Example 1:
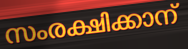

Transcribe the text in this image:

സംരക്ഷിക്കാന്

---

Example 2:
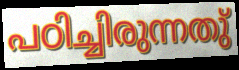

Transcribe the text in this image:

പഠിച്ചിരുന്നതു്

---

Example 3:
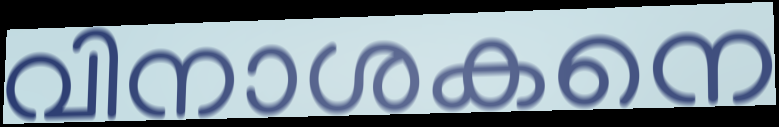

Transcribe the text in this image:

വിനാശകനെ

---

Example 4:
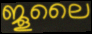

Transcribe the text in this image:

ജൂലൈ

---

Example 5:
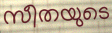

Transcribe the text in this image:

സീതയുടെ